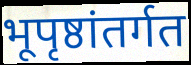
भूपृष्ठांतर्गत